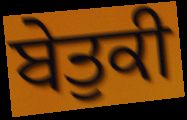
ਬੇਤੁਕੀ